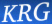
KRG